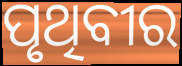
ପୃଥିବୀର